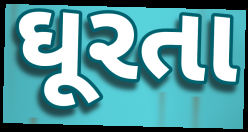
ઘૂરતા